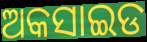
ଅକସାଇଡ